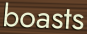
boasts